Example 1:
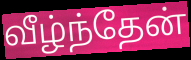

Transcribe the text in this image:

வீழ்ந்தேன்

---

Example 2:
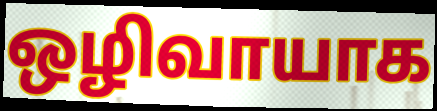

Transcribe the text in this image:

ஒழிவாயாக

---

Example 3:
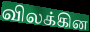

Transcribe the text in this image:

விலக்கின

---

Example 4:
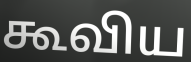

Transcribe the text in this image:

கூவிய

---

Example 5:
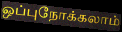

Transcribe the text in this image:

ஒப்புநோக்கலாம்